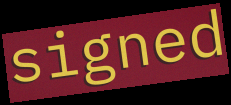
signed